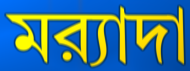
মর‍্যাদা